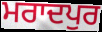
ਮਰਾਦਪੁਰ